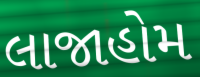
લાજાહોમ